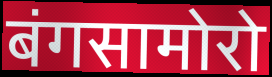
बंगसामोरो